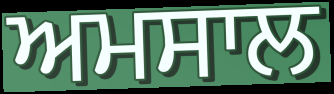
ਅਮਸਾਲ